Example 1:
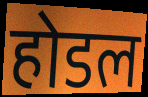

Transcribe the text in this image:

होडल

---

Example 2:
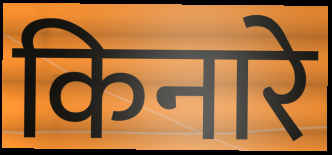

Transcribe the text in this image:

किनारे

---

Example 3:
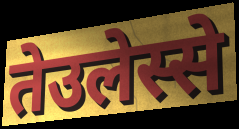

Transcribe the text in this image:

तेउलेस्से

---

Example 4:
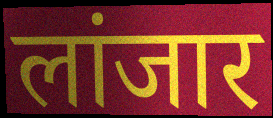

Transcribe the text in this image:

लांजार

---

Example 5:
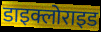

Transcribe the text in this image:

डाइक्लोराइड